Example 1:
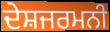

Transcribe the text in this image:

ਦੇਸ਼ਜਰਮਨੀ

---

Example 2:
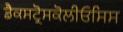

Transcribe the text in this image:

ਡੈਕਸਟ੍ਰੋਸਕੋਲੀਓਸਿਸ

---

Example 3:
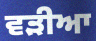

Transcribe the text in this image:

ਵੜੀਆ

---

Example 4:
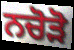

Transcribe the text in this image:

ਨਚੋੜੋ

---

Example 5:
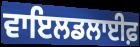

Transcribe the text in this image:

ਵਾਇਲਡਲਾਈਫ਼